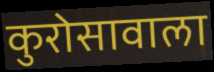
कुरोसावाला